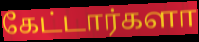
கேட்டார்களா